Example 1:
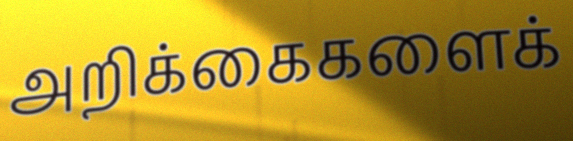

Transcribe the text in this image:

அறிக்கைகளைக்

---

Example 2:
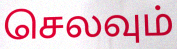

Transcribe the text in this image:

செலவும்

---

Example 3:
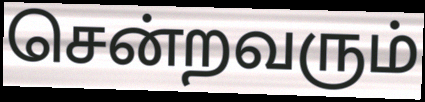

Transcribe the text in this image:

சென்றவரும்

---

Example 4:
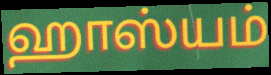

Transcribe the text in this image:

ஹாஸ்யம்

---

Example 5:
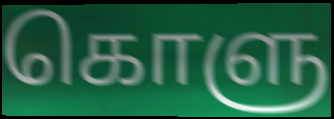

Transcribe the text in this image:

கொளு